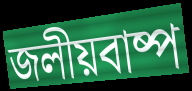
জলীয়বাষ্প